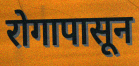
रोगापासून